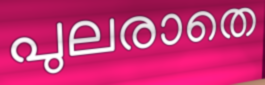
പുലരാതെ